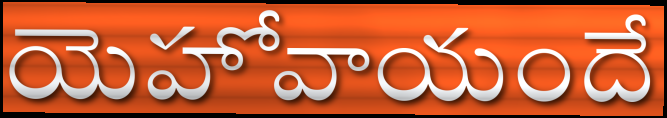
యెహోవాయందే